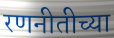
रणनीतीच्या